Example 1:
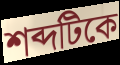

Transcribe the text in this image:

শব্দটিকে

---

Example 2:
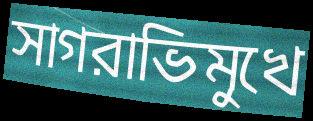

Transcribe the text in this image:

সাগরাভিমুখে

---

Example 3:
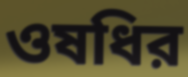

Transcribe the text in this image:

ওষধির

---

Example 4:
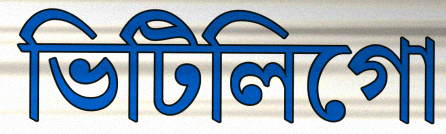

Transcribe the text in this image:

ভিটিলিগো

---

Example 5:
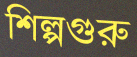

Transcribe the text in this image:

শিল্পগুরু